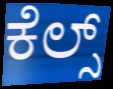
ಕೆಲ್ಸ್